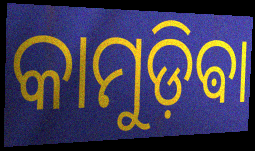
କାମୁଡ଼ିଵା